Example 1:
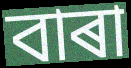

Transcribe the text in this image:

বাৰা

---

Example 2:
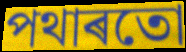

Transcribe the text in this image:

পথাৰতো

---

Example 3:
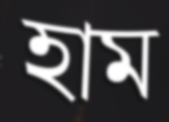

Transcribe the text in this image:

হাম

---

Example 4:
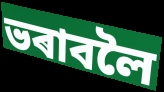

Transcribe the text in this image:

ভৰাবলৈ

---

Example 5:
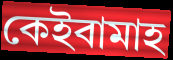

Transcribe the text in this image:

কেইবামাহ